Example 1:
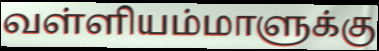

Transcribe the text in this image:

வள்ளியம்மாளுக்கு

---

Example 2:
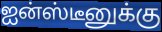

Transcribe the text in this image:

ஐன்ஸ்டீனுக்கு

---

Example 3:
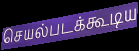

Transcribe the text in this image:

செயல்படக்கூடிய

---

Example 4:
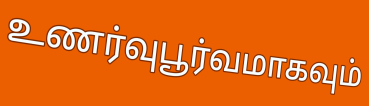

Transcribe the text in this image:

உணர்வுபூர்வமாகவும்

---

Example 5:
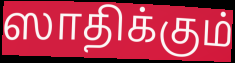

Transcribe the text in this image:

ஸாதிக்கும்